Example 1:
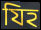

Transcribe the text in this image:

যিহ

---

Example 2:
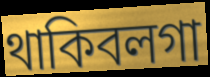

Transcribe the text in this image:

থাকিবলগা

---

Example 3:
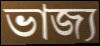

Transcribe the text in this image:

ভাজ্য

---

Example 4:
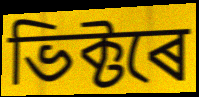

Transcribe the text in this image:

ভিক্টৰে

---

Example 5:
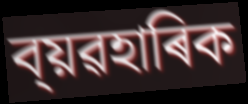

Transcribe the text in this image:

ব্য়ৱহাৰিক